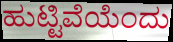
ಹುಟ್ಟಿವೆಯೆಂದು